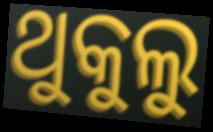
ଥୁକୁଲୁ